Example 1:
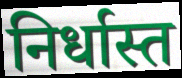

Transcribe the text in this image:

निर्धास्त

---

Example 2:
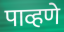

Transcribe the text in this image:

पाव्हणे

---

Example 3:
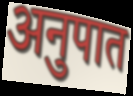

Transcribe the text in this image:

अनुपात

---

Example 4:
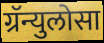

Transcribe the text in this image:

ग्रॅन्युलोसा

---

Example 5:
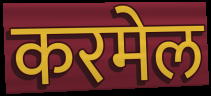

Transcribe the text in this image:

करमेल